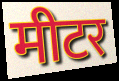
मीटर